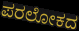
ಪರಲೋಕದ